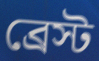
ব্রেস্ট